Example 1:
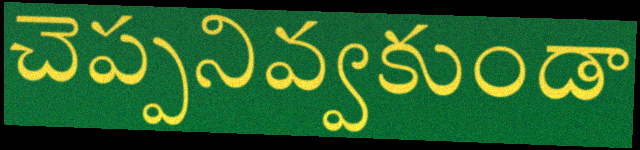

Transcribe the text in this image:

చెప్పనివ్వకుండా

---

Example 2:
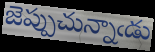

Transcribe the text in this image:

జెప్పుచున్నాఁడు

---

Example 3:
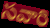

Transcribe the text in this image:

సవారి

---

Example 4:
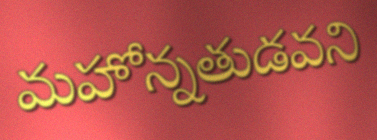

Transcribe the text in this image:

మహోన్నతుడవని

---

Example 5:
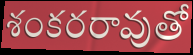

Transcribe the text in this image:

శంకరరావుతో